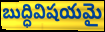
బుద్ధివిషయమై